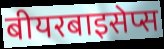
बीयरबाइसेप्स